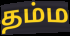
தம்ம